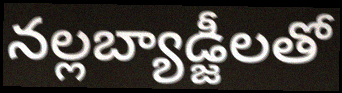
నల్లబ్యాడ్జీలతో